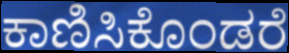
ಕಾಣಿಸಿಕೊಂಡರೆ